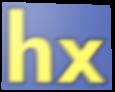
hx